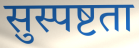
सुस्पष्टता